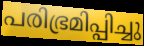
പരിഭ്രമിപ്പിച്ചു